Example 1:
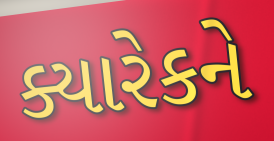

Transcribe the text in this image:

ક્યારેકને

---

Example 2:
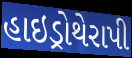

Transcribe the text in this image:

હાઇડ્રોથેરાપી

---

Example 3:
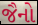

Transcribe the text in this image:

જૈનો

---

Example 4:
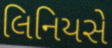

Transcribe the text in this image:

લિનિયસે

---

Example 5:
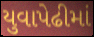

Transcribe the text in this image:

યુવાપેઢીમાં